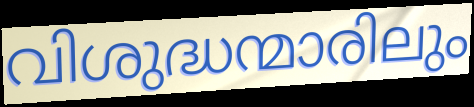
വിശുദ്ധന്മാരിലും